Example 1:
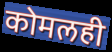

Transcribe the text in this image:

कोमलही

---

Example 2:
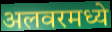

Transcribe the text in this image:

अलवरमध्ये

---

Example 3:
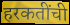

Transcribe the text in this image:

हरकतींची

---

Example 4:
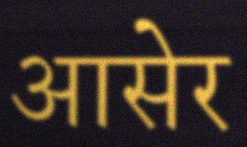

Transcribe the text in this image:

आसेर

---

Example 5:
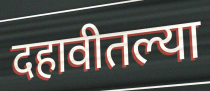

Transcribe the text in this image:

दहावीतल्या